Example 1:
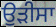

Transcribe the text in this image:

ਉੜੀਸਾ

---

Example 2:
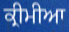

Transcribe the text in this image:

ਕ੍ਰੀਮੀਆ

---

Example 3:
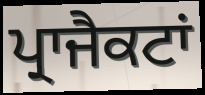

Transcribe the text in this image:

ਪ੍ਰਾਜੈਕਟਾਂ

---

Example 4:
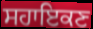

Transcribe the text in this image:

ਸਹਾਇਕਣ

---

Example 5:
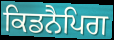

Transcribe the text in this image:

ਕਿਡਨੈਪਿਗ